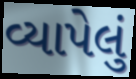
વ્યાપેલું